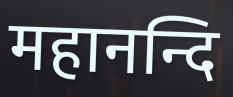
महानन्दि